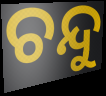
ଚନ୍ଦୁ